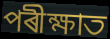
পৰীক্ষাত